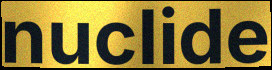
nuclide